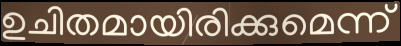
ഉചിതമായിരിക്കുമെന്ന്